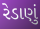
રેડાણું